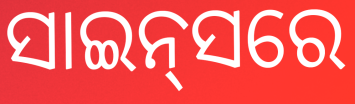
ସାଇନ୍‌ସରେ